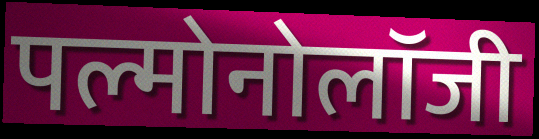
पल्मोनोलॉजी